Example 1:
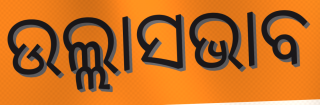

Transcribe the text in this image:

ଉଲ୍ଲାସଭାବ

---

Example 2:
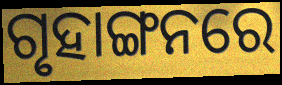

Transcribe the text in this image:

ଗୃହାଙ୍ଗନରେ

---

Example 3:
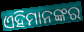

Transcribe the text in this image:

ଏହିମାନଙ୍କର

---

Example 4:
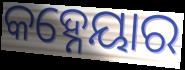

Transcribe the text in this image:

କହ୍ନେୟାର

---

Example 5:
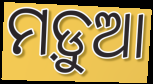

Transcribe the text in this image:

ମଡ଼ୁଆ